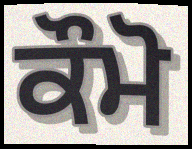
ਕੌਮੋ